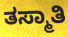
ತಸ್ಮಾತಿ